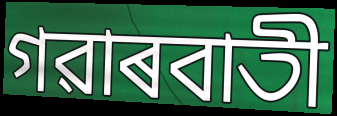
গৱাৰবাতী